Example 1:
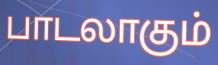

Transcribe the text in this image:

பாடலாகும்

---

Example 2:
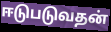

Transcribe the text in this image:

ஈடுபடுவதன்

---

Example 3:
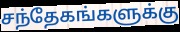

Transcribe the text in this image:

சந்தேகங்களுக்கு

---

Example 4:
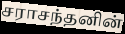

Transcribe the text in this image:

சராசந்தனின்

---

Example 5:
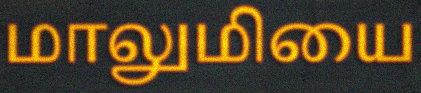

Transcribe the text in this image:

மாலுமியை